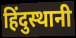
हिंदुस्थानी